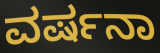
ವರ್ಷನಾ